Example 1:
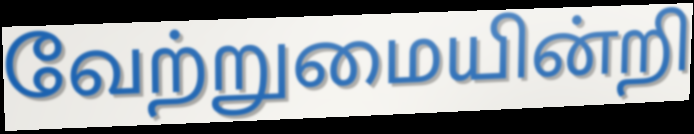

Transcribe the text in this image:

வேற்றுமையின்றி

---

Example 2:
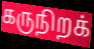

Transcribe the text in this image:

கருநிறக்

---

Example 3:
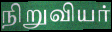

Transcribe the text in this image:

நிறுவியர்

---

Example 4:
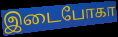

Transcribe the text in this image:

இடைபோகா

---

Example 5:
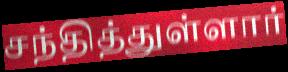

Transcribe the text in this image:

சந்தித்துள்ளார்